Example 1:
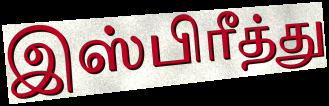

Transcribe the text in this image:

இஸ்பிரீத்து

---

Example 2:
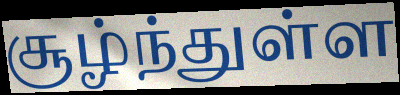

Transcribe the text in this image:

சூழ்ந்துள்ள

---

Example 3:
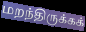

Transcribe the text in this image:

மறந்திருக்கக்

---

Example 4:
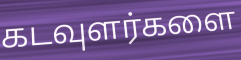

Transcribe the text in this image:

கடவுளர்களை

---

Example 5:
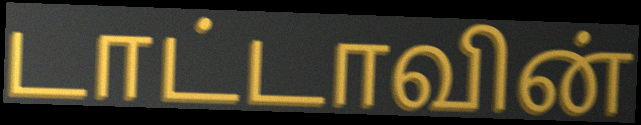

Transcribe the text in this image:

டாட்டாவின்